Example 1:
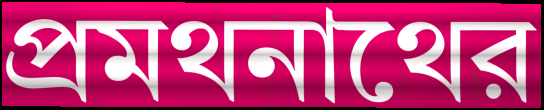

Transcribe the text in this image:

প্রমথনাথের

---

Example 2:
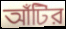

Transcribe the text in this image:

আঁটির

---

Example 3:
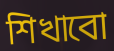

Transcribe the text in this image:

শিখাবো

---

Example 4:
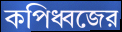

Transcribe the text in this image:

কপিধ্বজের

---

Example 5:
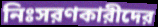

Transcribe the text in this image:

নিঃসরণকারীদের